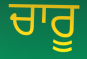
ਚਾਰੂ